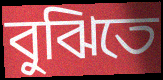
বুঝিতে